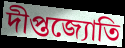
দীপ্তজ্যোতি